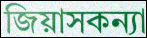
জিয়াসকন্যা